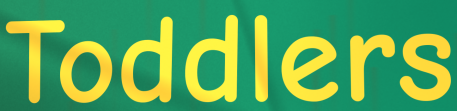
Toddlers